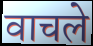
वाचले